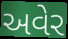
અવેર